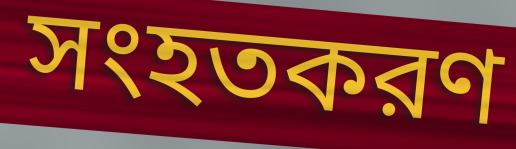
সংহতকরণ